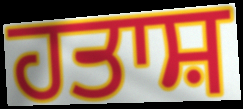
ਹਤਾਸ਼